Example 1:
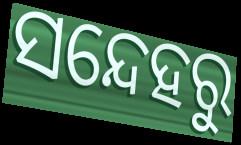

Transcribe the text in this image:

ସନ୍ଦେହରୁ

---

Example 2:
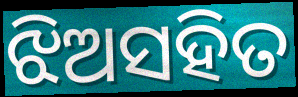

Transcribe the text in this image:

ଝିଅସହିତ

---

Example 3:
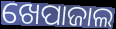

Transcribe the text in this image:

ଖେପାଜାଲ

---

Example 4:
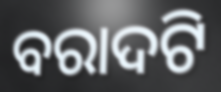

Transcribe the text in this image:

ବରାଦଟି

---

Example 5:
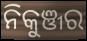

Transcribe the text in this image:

ନିକୁଞ୍ଜର